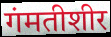
गंमतीशीर